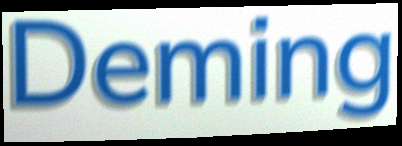
Deming